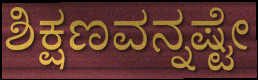
ಶಿಕ್ಷಣವನ್ನಷ್ಟೇ